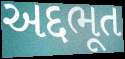
અદ્દભૂત